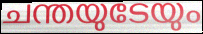
ചന്തയുടേയും